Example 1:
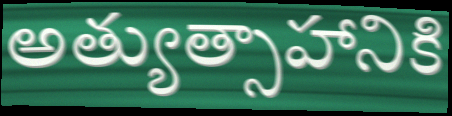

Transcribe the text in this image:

అత్యుత్సాహానికి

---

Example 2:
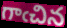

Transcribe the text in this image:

గాఁచిన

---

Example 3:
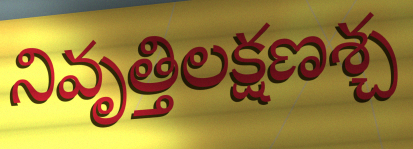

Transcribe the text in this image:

నివృత్తిలక్షణశ్చ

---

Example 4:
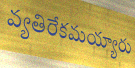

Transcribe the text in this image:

వ్యతిరేకమయ్యారు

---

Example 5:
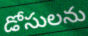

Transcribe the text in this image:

డోసులను